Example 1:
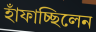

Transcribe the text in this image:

হাঁফাচ্ছিলেন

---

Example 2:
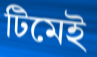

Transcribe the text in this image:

টিমেই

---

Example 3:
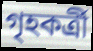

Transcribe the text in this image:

গৃহকর্ত্রী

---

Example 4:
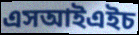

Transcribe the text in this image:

এসআইএইচ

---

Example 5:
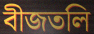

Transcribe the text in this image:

বীজতলি